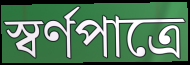
স্বর্ণপাত্রে